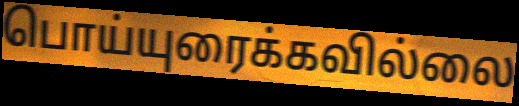
பொய்யுரைக்கவில்லை